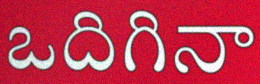
ఒదిగినా